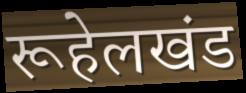
रूहेलखंड